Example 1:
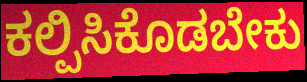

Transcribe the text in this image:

ಕಲ್ಪಿಸಿಕೊಡಬೇಕು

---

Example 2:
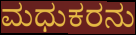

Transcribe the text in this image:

ಮಧುಕರನು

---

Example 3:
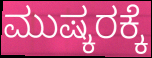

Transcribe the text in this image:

ಮುಷ್ಕರಕ್ಕೆ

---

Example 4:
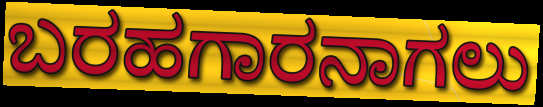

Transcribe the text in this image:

ಬರಹಗಾರನಾಗಲು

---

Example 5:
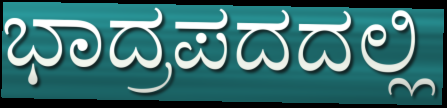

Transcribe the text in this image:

ಭಾದ್ರಪದದಲ್ಲಿ